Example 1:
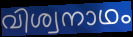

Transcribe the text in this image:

വിശ്വനാഥം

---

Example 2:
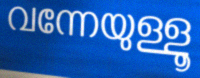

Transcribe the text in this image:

വന്നേയുള്ളൂ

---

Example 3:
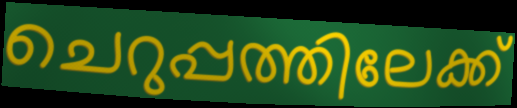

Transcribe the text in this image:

ചെറുപ്പത്തിലേക്ക്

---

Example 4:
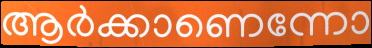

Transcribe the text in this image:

ആർക്കാണെന്നോ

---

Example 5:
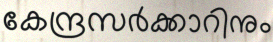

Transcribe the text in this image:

കേന്ദ്രസർക്കാറിനും